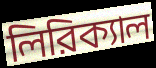
লিরিক্যাল